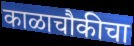
काळाचौकीचा